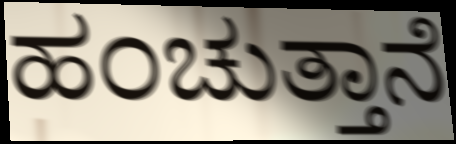
ಹಂಚುತ್ತಾನೆ